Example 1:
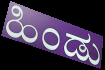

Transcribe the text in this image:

ಹಿಂಡು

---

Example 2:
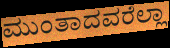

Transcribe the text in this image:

ಮುಂತಾದವರೆಲ್ಲಾ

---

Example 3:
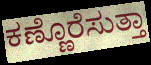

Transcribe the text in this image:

ಕಣ್ಣೊರೆಸುತ್ತಾ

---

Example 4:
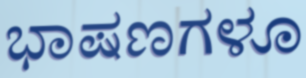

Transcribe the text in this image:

ಭಾಷಣಗಳೂ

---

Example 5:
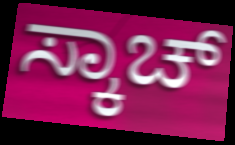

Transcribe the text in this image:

ಸ್ಕಾಚ್